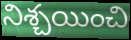
నిశ్చయించి